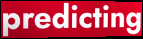
predicting